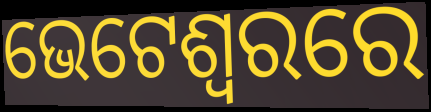
ଭେଟେଶ୍ୱରରେ